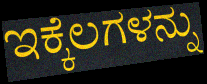
ಇಕ್ಕೆಲಗಳನ್ನು